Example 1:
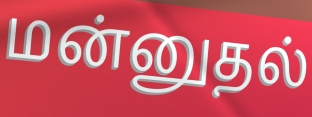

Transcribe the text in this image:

மன்னுதல்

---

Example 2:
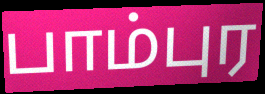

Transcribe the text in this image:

பாம்புர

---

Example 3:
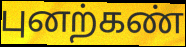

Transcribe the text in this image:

புனற்கண்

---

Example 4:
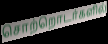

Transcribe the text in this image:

சொற்றொடர்களில்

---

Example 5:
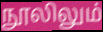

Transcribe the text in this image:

நூலிலும்